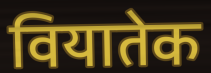
वियातेक